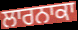
ਲਾਰਨਾਕਾ